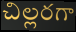
చిల్లరగా